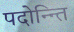
पदोन्न्ति